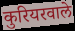
कुरियरवाले